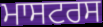
ਮਾਸਟਰਸ